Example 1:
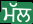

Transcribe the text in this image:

ਮੱਲ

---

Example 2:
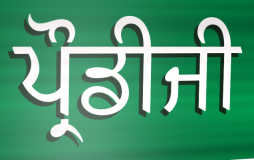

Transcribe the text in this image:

ਪ੍ਰੌਡੀਜੀ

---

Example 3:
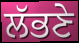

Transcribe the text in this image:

ਲੱਭਣੇ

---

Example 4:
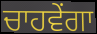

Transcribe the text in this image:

ਚਾਹਵੇਂਗਾ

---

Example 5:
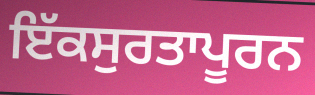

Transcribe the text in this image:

ਇੱਕਸੁਰਤਾਪੂਰਨ